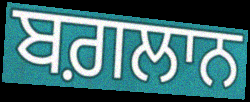
ਬਗ਼ਲਾਨ